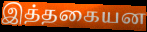
இத்தகையன